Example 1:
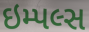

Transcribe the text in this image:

ઇમ્પલ્સ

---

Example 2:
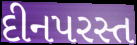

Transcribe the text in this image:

દીનપરસ્ત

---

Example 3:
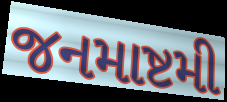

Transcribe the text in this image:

જનમાષ્ટમી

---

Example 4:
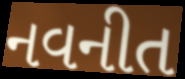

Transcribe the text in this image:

નવનીત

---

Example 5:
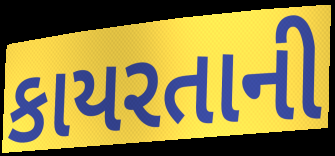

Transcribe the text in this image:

કાયરતાની